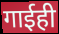
गाईही